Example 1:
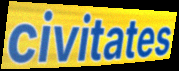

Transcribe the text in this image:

civitates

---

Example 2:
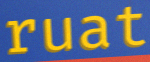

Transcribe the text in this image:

ruat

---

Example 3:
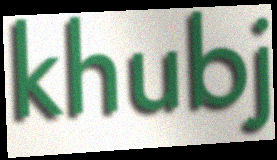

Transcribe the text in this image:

khubj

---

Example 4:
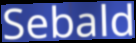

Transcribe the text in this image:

Sebald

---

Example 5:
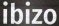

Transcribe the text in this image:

ibizo